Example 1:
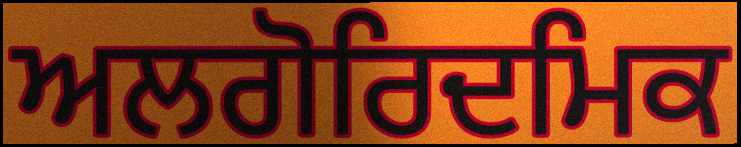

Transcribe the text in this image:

ਅਲਗੋਰਿਦਮਿਕ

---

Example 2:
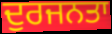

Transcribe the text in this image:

ਦੁਰਜਨਤਾ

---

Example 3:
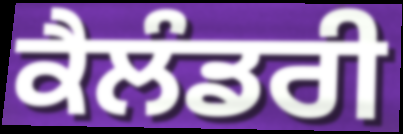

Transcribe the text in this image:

ਕੈਲੰਡਰੀ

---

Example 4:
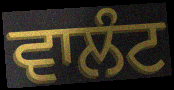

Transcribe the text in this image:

ਵਾਲੰਟ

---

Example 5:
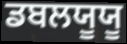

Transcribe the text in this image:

ਡਬਲਯੂਯੂ